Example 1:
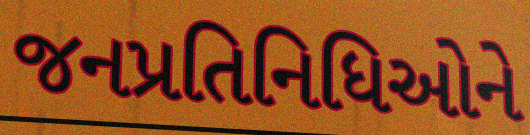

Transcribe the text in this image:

જનપ્રતિનિધિઓને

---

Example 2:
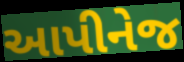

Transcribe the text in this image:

આપીનેજ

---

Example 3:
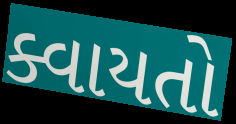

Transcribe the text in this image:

ક્વાયતો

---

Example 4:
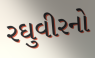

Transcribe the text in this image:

રઘુવીરનો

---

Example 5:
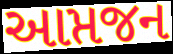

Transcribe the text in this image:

આપ્તજન